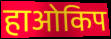
हाओकिप